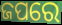
ଜପରେ